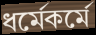
ধর্মেকর্মে